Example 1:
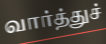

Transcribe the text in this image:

வார்த்துச்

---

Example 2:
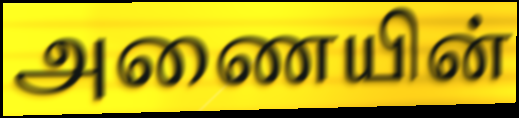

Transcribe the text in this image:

அணையின்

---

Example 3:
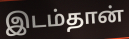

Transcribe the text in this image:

இடம்தான்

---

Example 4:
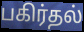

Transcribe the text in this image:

பகிர்தல்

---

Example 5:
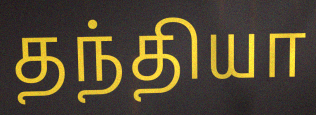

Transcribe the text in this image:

தந்தியா